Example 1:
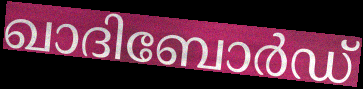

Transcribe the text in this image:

ഖാദിബോർഡ്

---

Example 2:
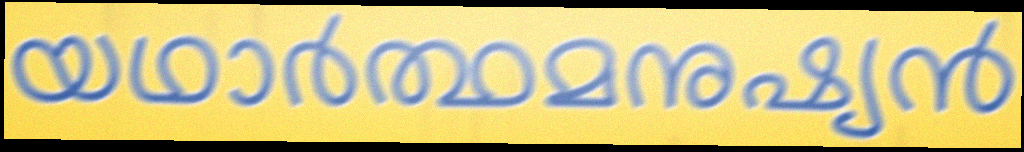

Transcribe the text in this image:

യഥാർത്ഥമനുഷ്യൻ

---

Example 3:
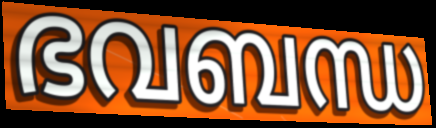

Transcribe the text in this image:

ഭവബന്ധ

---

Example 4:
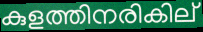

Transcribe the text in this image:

കുളത്തിനരികില്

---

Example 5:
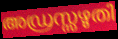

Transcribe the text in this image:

അഡ്രസ്സഴുതി